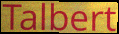
Talbert